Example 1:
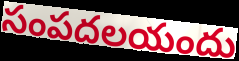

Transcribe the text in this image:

సంపదలయందు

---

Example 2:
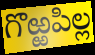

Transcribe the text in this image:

గొఱ్ఱపిల్ల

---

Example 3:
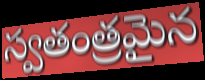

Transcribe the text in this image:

స్వతంత్రమైన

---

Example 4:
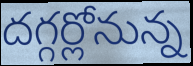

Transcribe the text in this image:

దగ్గర్లోనున్న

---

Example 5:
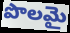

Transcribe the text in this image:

పొలమై